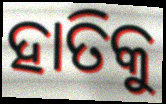
ହାତିକୁ